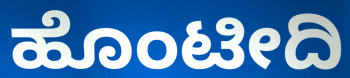
ಹೊಂಟೀದಿ